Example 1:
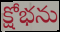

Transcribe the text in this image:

క్షోభను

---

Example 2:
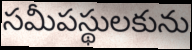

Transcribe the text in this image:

సమీపస్థులకును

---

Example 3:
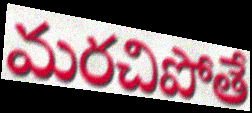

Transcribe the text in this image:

మరచిపోతే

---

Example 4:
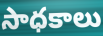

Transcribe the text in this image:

సాధకాలు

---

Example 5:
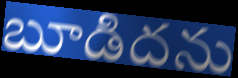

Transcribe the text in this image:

బూడిదను